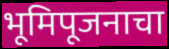
भूमिपूजनाचा